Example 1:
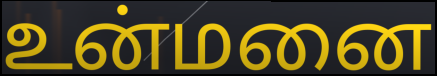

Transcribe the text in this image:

உன்மனை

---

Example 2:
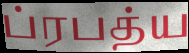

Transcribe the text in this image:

ப்ரபத்ய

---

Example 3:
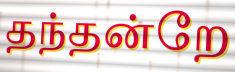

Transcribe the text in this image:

தந்தன்றே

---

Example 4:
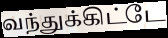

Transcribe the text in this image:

வந்துக்கிட்டே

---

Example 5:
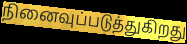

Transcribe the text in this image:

நினைவுப்படுத்துகிறது